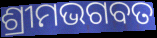
ଶ୍ରୀମଭଗବତ